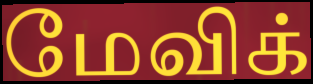
மேவிக்